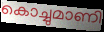
കൊച്ചുമാണി